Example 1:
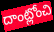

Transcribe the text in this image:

దాంట్లోంచి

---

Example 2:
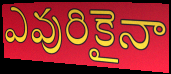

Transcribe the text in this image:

ఎవురికైనా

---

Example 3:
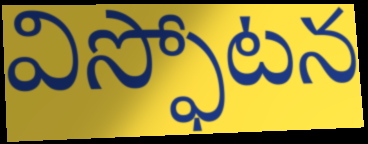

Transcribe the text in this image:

విస్ఫోటన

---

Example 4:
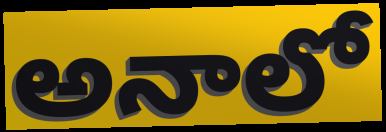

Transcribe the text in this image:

అనాలో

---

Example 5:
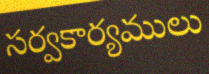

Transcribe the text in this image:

సర్వకార్యములు